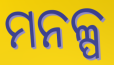
ମନଳ୍ପ